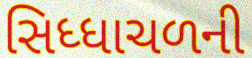
સિધ્ધાચળની